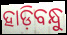
ହାଡ଼ିବନ୍ଧୁ